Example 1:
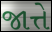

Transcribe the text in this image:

જાત્તે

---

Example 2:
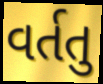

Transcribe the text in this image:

વર્તતુ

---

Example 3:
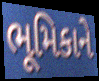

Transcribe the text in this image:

ભૂમિકાને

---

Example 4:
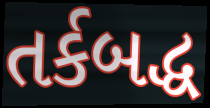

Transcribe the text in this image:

તર્કબદ્ધ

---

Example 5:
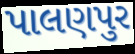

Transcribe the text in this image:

પાલણપુર